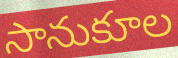
సానుకూల